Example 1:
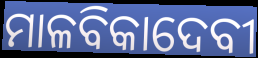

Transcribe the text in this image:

ମାଳବିକାଦେବୀ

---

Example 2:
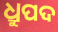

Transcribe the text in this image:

ଧ୍ରୁପଦ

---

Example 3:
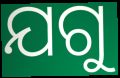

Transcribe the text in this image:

ଯଗୁ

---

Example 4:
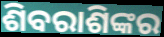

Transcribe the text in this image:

ଶିବରାଶିଙ୍କର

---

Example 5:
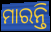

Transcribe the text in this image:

ମାରନ୍ତି